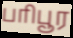
பரிபூர